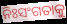
ନିଃସଂଗତାକୁ